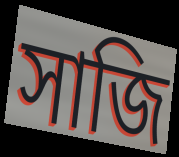
সাজি